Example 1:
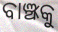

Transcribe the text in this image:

ବାଞ୍ଝକୁ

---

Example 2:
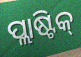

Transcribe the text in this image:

ପ୍ଲାଷ୍ଟିକ୍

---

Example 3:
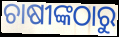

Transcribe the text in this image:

ଚାଷୀଙ୍କଠାରୁ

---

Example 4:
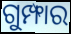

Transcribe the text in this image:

ଗୁମ୍ଫାର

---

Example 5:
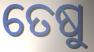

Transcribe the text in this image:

ତେଷୁ